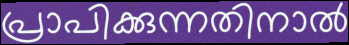
പ്രാപിക്കുന്നതിനാൽ